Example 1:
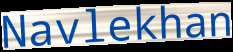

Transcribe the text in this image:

Navlekhan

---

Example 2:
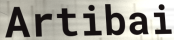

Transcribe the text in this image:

Artibai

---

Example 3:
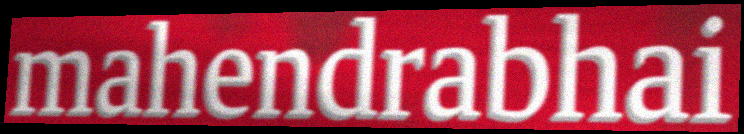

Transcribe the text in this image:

mahendrabhai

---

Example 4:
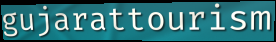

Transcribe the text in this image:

gujarattourism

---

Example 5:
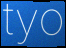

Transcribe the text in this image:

tyo